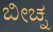
ಬೀಚ್ನ